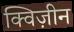
क्विज़ीन